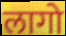
लागो